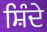
ਸ਼ਿੰਦੇ